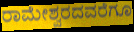
ರಾಮೇಶ್ವರದವರೆಗೂ